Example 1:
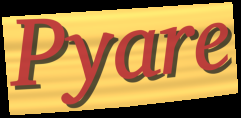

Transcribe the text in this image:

Pyare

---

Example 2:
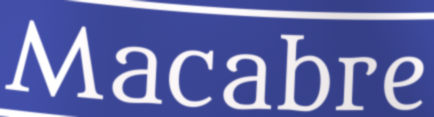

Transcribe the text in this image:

Macabre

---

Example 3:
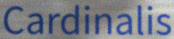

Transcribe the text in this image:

Cardinalis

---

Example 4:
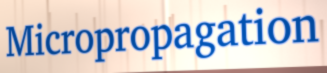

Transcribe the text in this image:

Micropropagation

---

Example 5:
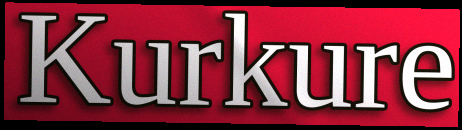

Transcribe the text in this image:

Kurkure